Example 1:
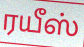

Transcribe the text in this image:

ரயீஸ்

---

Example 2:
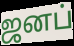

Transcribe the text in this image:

ஜனப்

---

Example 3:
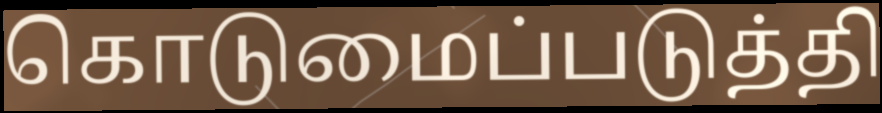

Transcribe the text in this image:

கொடுமைப்படுத்தி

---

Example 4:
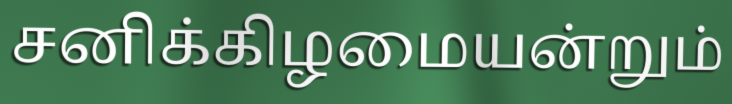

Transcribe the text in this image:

சனிக்கிழமையன்றும்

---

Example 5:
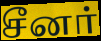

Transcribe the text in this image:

சீனர்